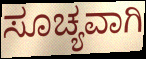
ಸೂಚ್ಯವಾಗಿ